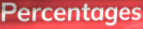
Percentages